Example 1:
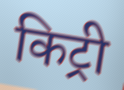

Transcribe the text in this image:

किट्री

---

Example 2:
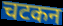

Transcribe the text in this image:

चटकन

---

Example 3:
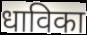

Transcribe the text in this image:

धाविका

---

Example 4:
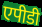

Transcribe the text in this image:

एपीडी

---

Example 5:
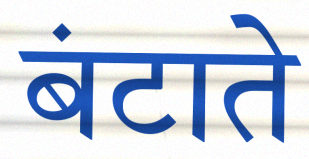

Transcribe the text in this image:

बंटाते